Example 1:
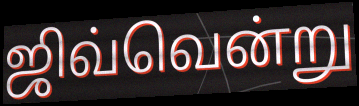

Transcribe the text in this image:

ஜிவ்வென்று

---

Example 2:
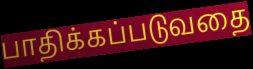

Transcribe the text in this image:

பாதிக்கப்படுவதை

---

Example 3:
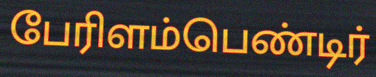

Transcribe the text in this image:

பேரிளம்பெண்டிர்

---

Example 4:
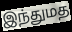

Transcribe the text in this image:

இந்துமத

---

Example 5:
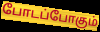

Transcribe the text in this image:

போடப்போகும்